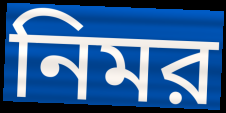
নিমর